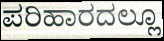
ಪರಿಹಾರದಲ್ಲೂ